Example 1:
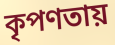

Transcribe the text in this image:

কৃপণতায়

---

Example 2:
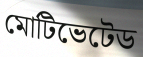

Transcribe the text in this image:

মোটিভেটেড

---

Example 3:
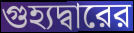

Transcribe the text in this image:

গুহ্যদ্বারের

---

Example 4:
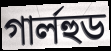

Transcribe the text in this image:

গার্লহুড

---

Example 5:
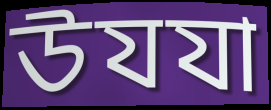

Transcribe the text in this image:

উযযা